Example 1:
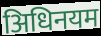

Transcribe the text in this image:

अिधिनयम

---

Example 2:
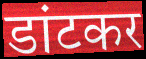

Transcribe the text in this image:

डांटकर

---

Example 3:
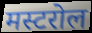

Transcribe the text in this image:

मस्टरोल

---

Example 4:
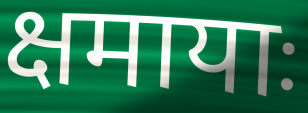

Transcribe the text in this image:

क्षमायाः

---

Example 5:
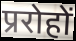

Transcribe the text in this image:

प्ररोहों